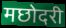
मछोदरी